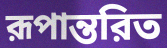
রূপান্তরিত